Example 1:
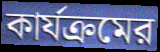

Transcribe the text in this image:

কার্যক্রমের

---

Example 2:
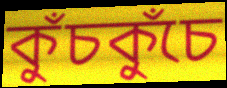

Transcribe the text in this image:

কুঁচকুঁচে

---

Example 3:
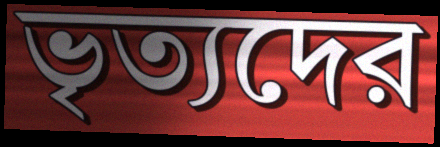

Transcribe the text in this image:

ভৃত্যদের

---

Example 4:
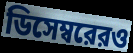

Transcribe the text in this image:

ডিসেম্বরেরও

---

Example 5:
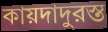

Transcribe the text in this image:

কায়দাদুরস্ত